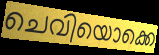
ചെവിയൊക്കെ